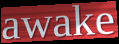
awake